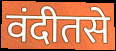
वंदीतसे